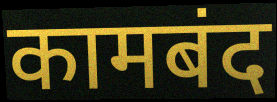
कामबंद